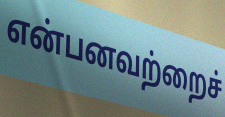
என்பனவற்றைச்